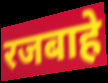
रजबाहे